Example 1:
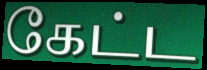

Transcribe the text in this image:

கேட்ட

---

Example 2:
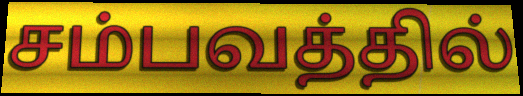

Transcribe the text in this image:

சம்பவத்தில்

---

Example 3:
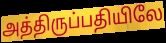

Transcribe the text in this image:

அத்திருப்பதியிலே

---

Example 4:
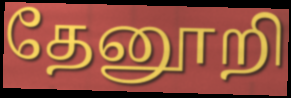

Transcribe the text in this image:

தேனூறி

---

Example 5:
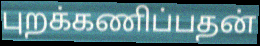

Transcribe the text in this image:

புறக்கணிப்பதன்